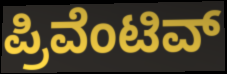
ಪ್ರಿವೆಂಟಿವ್